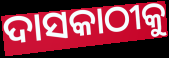
ଦାସକାଠୀକୁ